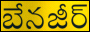
బేనజీర్